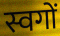
स्वगों